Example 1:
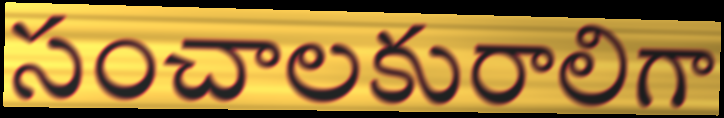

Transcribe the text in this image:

సంచాలకురాలిగా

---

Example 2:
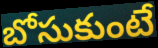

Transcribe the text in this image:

బోసుకుంటే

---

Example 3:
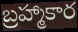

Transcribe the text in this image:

బ్రహ్మాకార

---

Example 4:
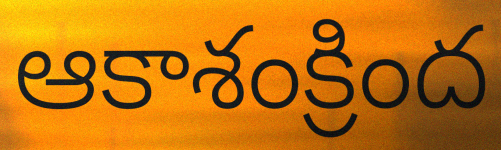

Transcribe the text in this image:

ఆకాశంక్రింద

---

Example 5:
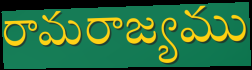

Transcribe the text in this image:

రామరాజ్యము